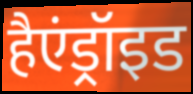
हैएंड्रॉइड